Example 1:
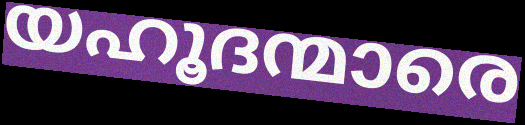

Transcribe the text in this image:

യഹൂദന്മാരെ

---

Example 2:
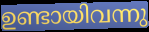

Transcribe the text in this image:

ഉണ്ടായിവന്നു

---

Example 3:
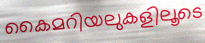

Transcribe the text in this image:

കൈമറിയലുകളിലൂടെ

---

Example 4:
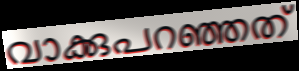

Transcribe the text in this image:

വാക്കുപറഞ്ഞത്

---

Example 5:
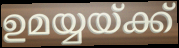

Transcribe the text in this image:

ഉമയ്യയ്ക്ക്